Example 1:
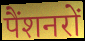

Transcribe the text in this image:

पैंशनरों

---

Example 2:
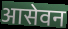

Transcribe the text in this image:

आसेवन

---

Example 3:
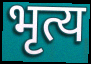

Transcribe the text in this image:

भृत्य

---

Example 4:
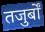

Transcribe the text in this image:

तजुर्बों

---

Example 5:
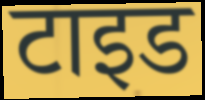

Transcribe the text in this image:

टाइड